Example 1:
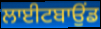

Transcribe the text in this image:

ਲਾਈਟਬਾਉਂਡ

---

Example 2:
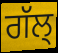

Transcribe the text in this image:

ਗੱਲ੍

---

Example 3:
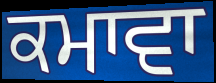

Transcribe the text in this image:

ਕਮਾਵਾ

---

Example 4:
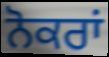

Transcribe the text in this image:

ਨੋਕਰਾਂ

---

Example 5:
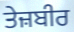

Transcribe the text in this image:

ਤੇਜ਼ਬੀਰ